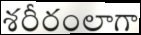
శరీరంలాగా